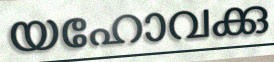
യഹോവക്കു